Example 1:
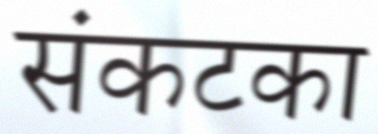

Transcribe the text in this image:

संकटका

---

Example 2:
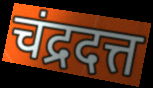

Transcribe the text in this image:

चंद्रदत्त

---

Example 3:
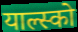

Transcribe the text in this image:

याल्स्को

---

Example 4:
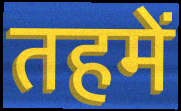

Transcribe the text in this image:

तहमें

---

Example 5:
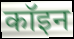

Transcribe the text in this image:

कॉइन